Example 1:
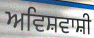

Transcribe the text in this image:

ਅਵਿਸ਼ਵਾਸ਼ੀ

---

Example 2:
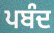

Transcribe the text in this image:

ਪਬੰਦ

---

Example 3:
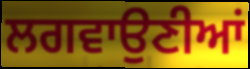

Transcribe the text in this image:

ਲਗਵਾਉਣੀਆਂ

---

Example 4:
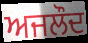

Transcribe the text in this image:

ਅਜਲੌਦ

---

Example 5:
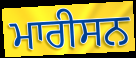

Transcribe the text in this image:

ਮਾਰੀਸਨ